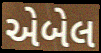
એબેલ